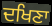
ਦਖਿਣਾ